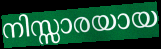
നിസ്സാരയായ